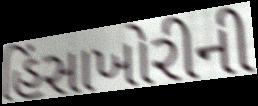
હિંસાખોરીની